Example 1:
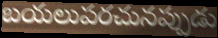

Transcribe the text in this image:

బయలుపరచునప్పుడు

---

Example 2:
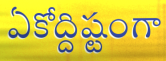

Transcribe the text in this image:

ఏకోద్దిష్టంగా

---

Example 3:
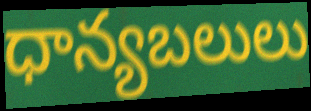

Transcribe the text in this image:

ధాన్యబలులు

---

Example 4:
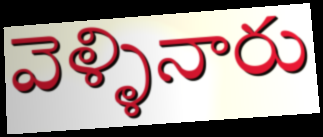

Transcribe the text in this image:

వెళ్ళినారు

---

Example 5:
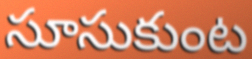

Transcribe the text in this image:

సూసుకుంట